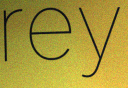
rey